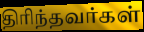
திரிந்தவர்கள்